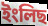
ইংলিছ